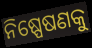
ନିଷ୍ପେଷଣକୁ